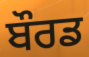
ਬੌਰਡ